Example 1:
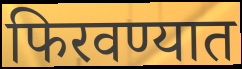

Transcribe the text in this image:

फिरवण्यात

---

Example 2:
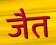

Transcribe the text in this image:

जैत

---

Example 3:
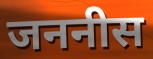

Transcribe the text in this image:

जननीस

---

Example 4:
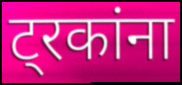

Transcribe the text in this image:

ट्रकांना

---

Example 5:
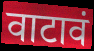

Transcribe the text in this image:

वाटावं